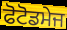
ਫੋਟੋਡਮੇਜ